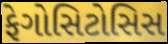
ફેગોસિટોસિસ